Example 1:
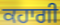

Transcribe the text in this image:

ਕਹਾਗੀ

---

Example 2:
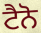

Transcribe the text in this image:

ਟੈਨੋ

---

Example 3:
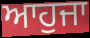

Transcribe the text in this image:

ਆਹੁਜਾ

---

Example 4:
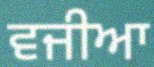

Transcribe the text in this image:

ਵਜੀਆ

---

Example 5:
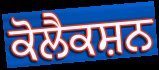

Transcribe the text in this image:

ਕੋਲੈਕਸ਼ਨ